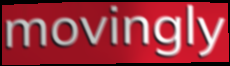
movingly